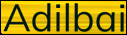
Adilbai